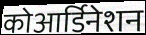
कोआर्डिनेशन